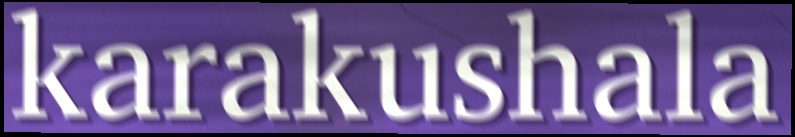
karakushala